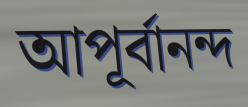
আপূর্বানন্দ